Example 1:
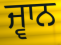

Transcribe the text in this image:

ਜ੍ਵਾਨ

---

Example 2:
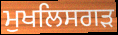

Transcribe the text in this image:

ਮੁਖਲਿਸਗੜ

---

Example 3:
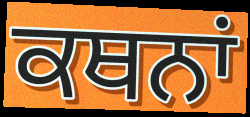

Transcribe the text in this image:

ਕਥਨਾਂ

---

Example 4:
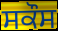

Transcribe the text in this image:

ਸਕੌਸ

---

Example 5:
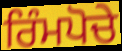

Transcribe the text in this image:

ਰਿੰਮਪੋਚੇ